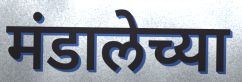
मंडालेच्या